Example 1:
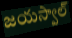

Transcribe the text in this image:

జయస్వాల్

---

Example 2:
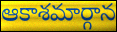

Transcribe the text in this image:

ఆకాశమార్గాన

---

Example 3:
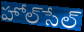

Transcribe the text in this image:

హోల్‌సేల్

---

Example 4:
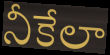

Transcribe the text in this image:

నీకేలా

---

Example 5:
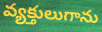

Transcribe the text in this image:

వ్యక్తులుగాను